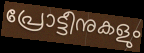
പ്രോട്ടീനുകളും